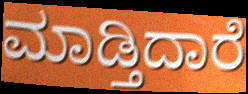
ಮಾಡ್ತಿದಾರೆ